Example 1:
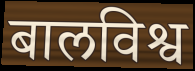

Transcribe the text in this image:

बालविश्व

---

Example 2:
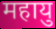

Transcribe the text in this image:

महायु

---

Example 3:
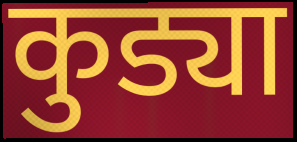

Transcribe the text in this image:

कुड्या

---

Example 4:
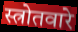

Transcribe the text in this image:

स्त्रोतवारे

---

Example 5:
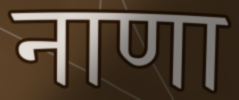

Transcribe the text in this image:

नाणा